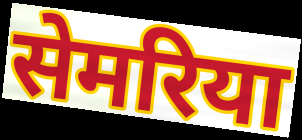
सेमरिया